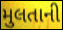
મુલતાની